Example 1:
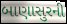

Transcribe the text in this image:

બાણાસુરની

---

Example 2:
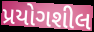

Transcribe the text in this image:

પ્રયોગશીલ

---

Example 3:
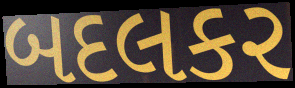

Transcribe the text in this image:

બદલકર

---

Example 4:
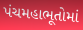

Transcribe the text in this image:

પંચમહાભૂતોમાં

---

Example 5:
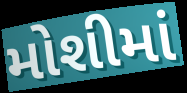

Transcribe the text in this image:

મોશીમાં